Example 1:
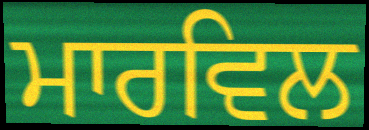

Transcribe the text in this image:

ਮਾਰਵਿਲ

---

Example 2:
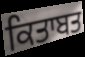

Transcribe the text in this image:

ਕਿਤਾਬਤ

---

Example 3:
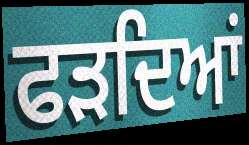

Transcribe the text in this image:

ਫੜਦਿਆਂ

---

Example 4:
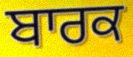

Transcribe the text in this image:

ਬਾਰਕ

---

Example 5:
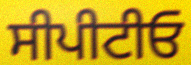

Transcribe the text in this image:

ਸੀਪੀਟੀਓ